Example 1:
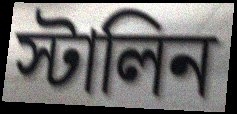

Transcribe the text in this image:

স্টালিন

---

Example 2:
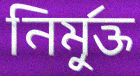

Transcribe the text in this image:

নির্মুক্ত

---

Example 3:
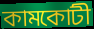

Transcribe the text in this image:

কামকোটী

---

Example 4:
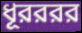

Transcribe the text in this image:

ধূরররর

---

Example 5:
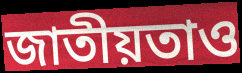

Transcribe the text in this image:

জাতীয়তাও